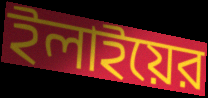
ইলাইয়ের